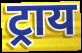
ट्राय